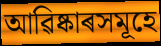
আৱিষ্কাৰসমূহে